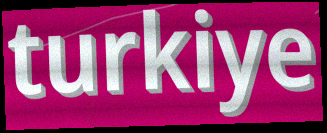
turkiye